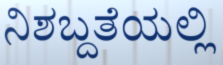
ನಿಶಬ್ದತೆಯಲ್ಲಿ